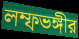
লম্ফভঙ্গীর